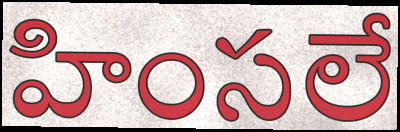
హింసలే